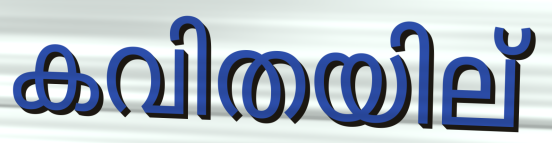
കവിതയില്